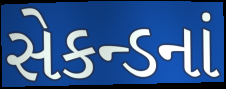
સેકન્ડનાં